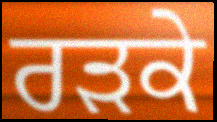
ਰੜਕੇ